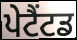
ਪੇਟੈਂਟਡ